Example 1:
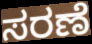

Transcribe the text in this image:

ಸರಣೆ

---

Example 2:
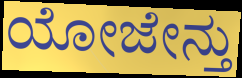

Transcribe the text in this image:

ಯೋಜೇನ್ತು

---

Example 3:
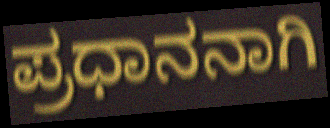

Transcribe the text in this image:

ಪ್ರಧಾನನಾಗಿ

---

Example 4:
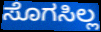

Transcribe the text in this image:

ಸೊಗಸಿಲ್ಲ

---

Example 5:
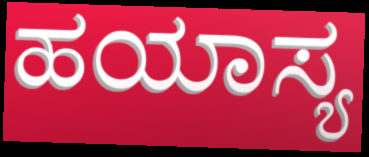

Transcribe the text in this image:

ಹಯಾಸ್ಯ